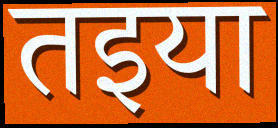
तइया